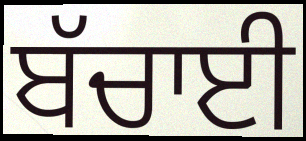
ਬੱਚਾਈ